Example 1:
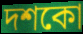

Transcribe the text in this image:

দশকো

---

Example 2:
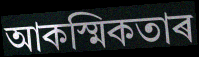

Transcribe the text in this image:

আকস্মিকতাৰ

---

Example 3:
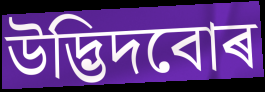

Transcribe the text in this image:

উদ্ভিদবোৰ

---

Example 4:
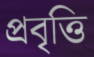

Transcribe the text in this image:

প্ৰবৃত্তি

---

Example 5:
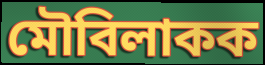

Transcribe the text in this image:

মৌবিলাকক